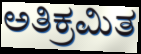
ಅತಿಕ್ರಮಿತ